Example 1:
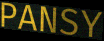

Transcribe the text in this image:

PANSY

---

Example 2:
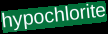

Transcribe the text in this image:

hypochlorite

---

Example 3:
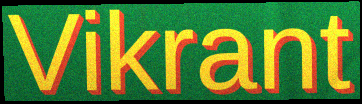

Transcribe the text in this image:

Vikrant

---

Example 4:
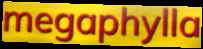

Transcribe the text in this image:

megaphylla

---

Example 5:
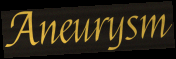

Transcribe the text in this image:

Aneurysm